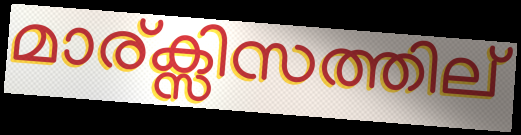
മാര്ക്സിസത്തില്